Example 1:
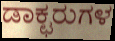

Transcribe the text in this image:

ಡಾಕ್ಟರುಗಳ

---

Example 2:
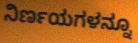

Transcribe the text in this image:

ನಿರ್ಣಯಗಳನ್ನೂ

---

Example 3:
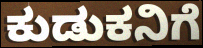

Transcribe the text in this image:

ಕುಡುಕನಿಗೆ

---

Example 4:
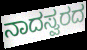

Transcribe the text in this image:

ನಾದಸ್ವರದ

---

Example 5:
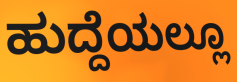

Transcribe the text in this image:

ಹುದ್ದೆಯಲ್ಲೂ